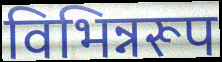
विभिन्नरूप